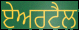
ਏਅਰਟੈਲ